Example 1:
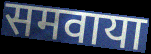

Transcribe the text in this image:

समवाया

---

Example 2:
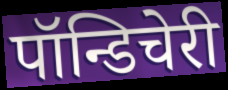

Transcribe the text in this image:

पॉन्डिचेरी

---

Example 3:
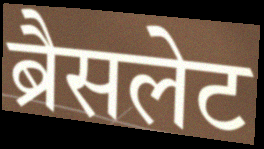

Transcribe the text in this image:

ब्रैसलेट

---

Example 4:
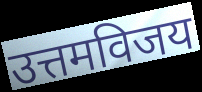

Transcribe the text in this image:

उत्तमविजय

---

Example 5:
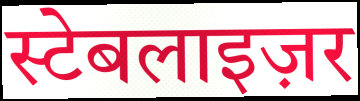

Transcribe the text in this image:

स्टेबलाइज़र